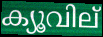
ക്യൂവില്